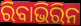
ରିବାଭିରିନ